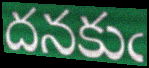
దనకుఁ